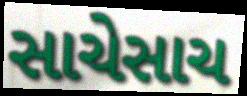
સાચેસાચ